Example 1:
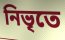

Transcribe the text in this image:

নিভৃতে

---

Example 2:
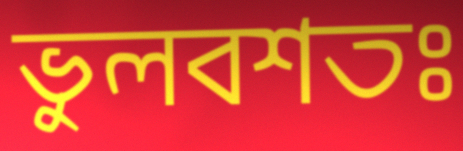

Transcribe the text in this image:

ভুলবশতঃ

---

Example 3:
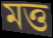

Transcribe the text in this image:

মত্ত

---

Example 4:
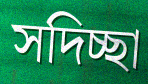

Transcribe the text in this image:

সদিচ্ছা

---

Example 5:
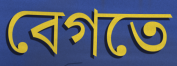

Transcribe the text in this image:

বেগতে